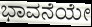
ಭಾವನೆಯೇ